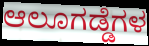
ಆಲೂಗಡ್ಡೆಗಳ